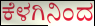
ಕೆಳಗಿನಿಂದ